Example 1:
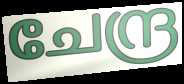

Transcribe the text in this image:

ചേന്ദ്ര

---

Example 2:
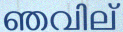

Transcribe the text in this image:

ഞവില്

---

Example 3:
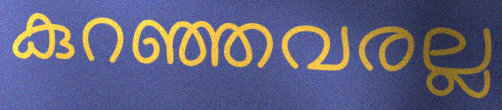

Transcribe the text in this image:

കുറഞ്ഞവരല്ല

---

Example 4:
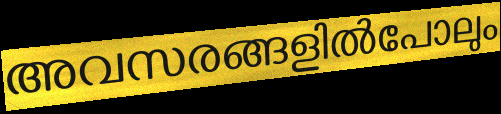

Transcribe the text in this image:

അവസരങ്ങളിൽപോലും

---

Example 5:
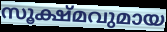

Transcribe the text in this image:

സൂക്ഷ്മവുമായ